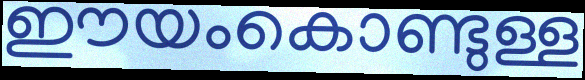
ഈയംകൊണ്ടുള്ള